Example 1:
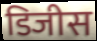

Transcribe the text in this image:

डिजीस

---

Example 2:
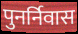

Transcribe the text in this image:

पुनर्निवास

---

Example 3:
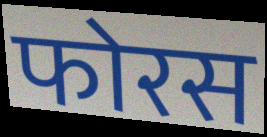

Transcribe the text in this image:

फोरस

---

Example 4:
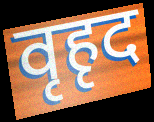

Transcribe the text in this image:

वृहृद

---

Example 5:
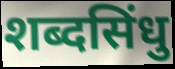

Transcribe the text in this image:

शब्दसिंधु